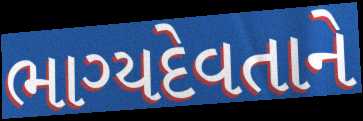
ભાગ્યદેવતાને